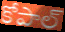
కోపాల్